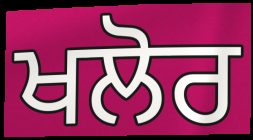
ਖਲੋਰ